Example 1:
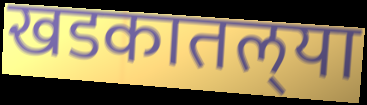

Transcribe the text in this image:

खडकातल्या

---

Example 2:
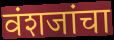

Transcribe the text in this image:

वंशजांचा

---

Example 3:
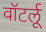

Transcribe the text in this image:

वॉटर्लू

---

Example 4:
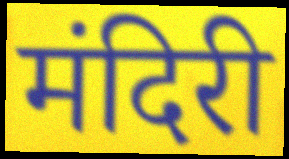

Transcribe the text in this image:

मंदिरी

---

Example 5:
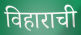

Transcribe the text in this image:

विहाराची